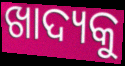
ଖାଦ୍ୟକୁ